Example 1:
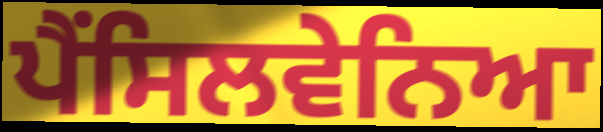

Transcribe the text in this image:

ਪੈਂਸਿਲਵੇਨਿਆ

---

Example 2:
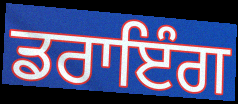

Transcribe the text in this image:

ਡਰਾਇੰਗ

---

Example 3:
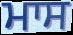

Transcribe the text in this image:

ਮਾਸ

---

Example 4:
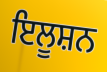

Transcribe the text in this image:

ਇਲੂਸ਼ਨ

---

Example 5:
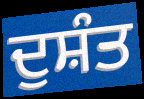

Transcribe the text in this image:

ਦੁਸ਼ੰਤ